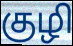
குழி